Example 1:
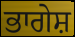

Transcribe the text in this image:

ਭਾਗੇਸ਼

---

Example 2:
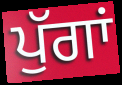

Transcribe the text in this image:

ਪੁੱਗਾਂ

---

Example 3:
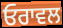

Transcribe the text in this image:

ਓਰਾਵਲ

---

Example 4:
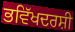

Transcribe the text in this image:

ਭਵਿੱਖਦਰਸ਼ੀ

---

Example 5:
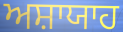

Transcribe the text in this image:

ਅਸ਼ਾਯਾਹ